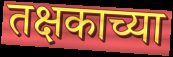
तक्षकाच्या